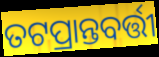
ତଟପ୍ରାନ୍ତବର୍ତ୍ତୀ